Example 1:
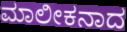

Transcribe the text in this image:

ಮಾಲೀಕನಾದ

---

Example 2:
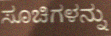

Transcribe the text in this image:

ಸೂಚಿಗಳನ್ನು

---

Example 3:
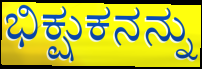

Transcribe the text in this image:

ಭಿಕ್ಷುಕನನ್ನು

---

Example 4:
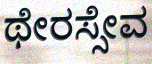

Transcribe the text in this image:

ಥೇರಸ್ಸೇವ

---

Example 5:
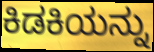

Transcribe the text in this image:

ಕಿಡಕಿಯನ್ನು